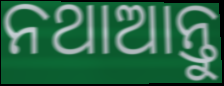
ନଥାଆନ୍ତୁ